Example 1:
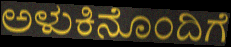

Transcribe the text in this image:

ಅಳುಕಿನೊಂದಿಗೆ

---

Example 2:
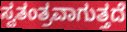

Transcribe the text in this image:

ಸ್ವತಂತ್ರವಾಗುತ್ತದೆ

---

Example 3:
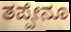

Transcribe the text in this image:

ತಪ್ಪೇನೂ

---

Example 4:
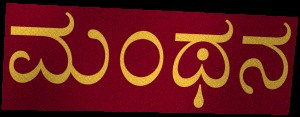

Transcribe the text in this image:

ಮಂಥನ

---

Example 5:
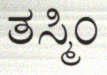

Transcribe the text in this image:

ತಸ್ಮಿಂ